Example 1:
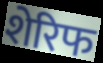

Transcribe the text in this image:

शेरिफ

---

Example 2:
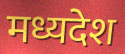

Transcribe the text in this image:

मध्यदेश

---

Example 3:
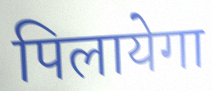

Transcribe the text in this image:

पिलायेगा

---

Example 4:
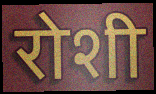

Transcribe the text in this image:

रोशी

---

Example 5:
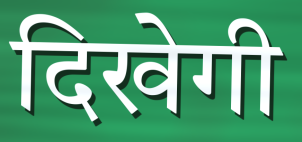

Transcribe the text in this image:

दिखेगी